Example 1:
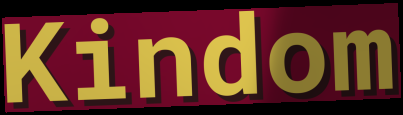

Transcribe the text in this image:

Kindom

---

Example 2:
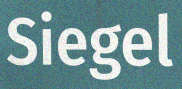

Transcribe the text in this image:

Siegel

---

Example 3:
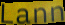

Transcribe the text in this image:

Lann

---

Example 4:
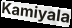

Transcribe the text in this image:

Kamiyala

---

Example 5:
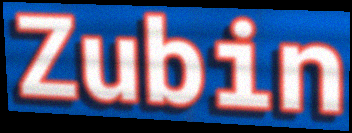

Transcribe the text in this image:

Zubin